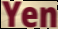
Yen